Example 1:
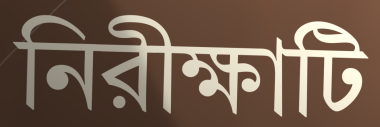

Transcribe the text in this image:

নিরীক্ষাটি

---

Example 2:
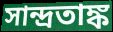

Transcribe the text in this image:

সান্দ্রতাঙ্ক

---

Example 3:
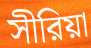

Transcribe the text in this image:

সীরিয়া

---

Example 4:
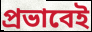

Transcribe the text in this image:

প্রভাবেই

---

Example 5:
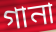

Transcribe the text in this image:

গানা